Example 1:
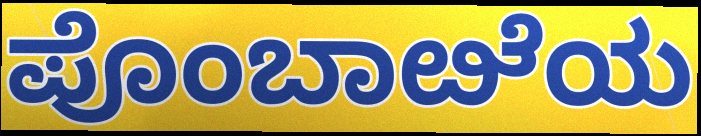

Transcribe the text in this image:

ಪೊಂಬಾೞೆಯ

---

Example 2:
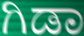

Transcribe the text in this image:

ಗಿಡಾ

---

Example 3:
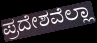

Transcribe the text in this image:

ಪ್ರದೇಶವೆಲ್ಲಾ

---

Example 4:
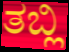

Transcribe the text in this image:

ತಬ್ಲಿ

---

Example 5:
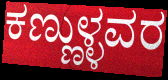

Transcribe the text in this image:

ಕಣ್ಣುಳ್ಳವರ